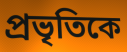
প্রভৃতিকে